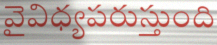
వైవిధ్యపరుస్తుంది